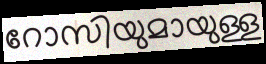
റോസിയുമായുള്ള